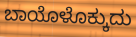
ಬಾಯೊಳೊಕ್ಕುದು